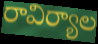
రావిర్యాల